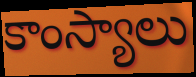
కాంస్యాలు